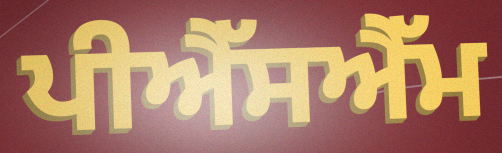
ਪੀਐੱਸਐੱਮ